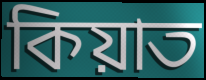
কিয়াত